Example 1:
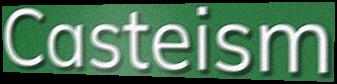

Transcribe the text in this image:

Casteism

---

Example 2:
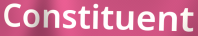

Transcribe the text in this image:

Constituent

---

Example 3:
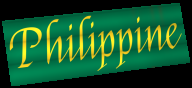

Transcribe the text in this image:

Philippine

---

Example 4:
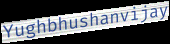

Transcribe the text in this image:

Yughbhushanvijay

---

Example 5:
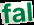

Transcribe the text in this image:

fal